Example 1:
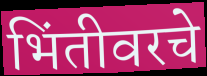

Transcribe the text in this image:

भिंतीवरचे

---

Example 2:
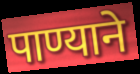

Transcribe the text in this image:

पाण्याने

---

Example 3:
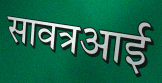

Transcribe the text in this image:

सावत्रआई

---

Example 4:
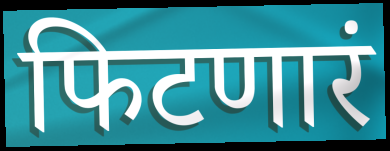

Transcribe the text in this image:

फिटणारं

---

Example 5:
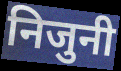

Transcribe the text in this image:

निजुनी